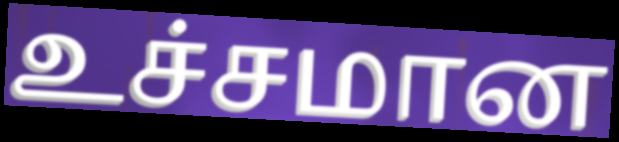
உச்சமான